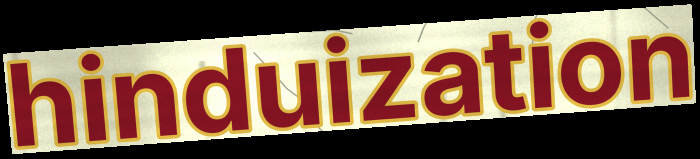
hinduization